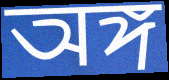
অঙ্গ